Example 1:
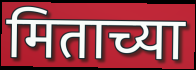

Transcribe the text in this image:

मिताच्या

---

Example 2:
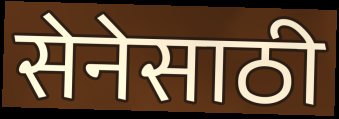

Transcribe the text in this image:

सेनेसाठी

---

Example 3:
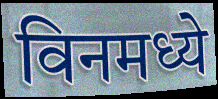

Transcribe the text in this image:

विनमध्ये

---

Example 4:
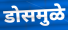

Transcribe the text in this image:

डोसमुळे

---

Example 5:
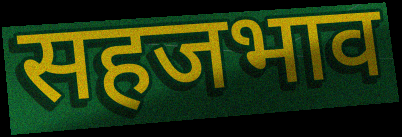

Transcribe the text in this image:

सहजभाव